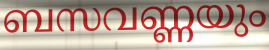
ബസവണ്ണയും